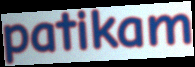
patikam